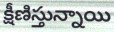
క్షీణిస్తున్నాయి